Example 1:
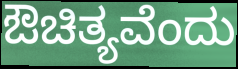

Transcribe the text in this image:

ಔಚಿತ್ಯವೆಂದು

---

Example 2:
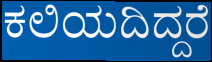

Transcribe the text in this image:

ಕಲಿಯದಿದ್ದರೆ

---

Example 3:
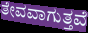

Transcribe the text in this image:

ತೇವವಾಗುತ್ತವೆ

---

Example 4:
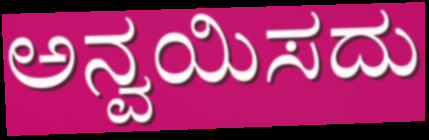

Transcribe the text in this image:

ಅನ್ವಯಿಸದು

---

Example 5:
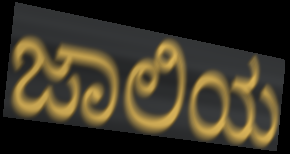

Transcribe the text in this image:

ಜಾಲಿಯ